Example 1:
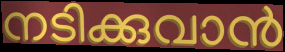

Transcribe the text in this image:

നടിക്കുവാൻ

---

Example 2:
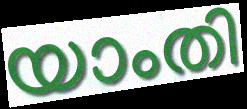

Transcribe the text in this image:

യാംതി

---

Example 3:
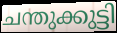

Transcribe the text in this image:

ചന്തുക്കുട്ടി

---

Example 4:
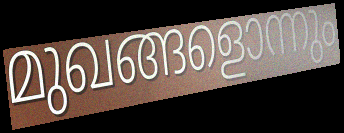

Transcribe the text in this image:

മുഖങ്ങളൊന്നും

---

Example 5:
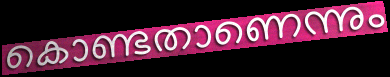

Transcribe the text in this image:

കൊണ്ടതാണെന്നും